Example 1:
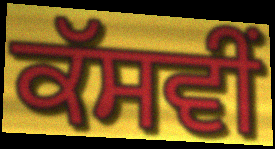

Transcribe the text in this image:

ਕੱਸਵੀਂ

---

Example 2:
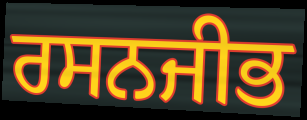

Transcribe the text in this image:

ਰਸਨਜੀਭ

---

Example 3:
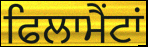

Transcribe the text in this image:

ਫਿਲਾਮੈਂਟਾਂ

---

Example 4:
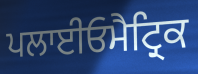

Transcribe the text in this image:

ਪਲਾਈਓਮੈਟ੍ਰਿਕ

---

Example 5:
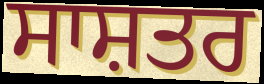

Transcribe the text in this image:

ਸਾਸ਼ਤਰ